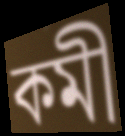
কমী